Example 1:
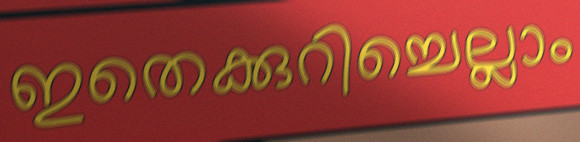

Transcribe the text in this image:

ഇതെക്കുറിച്ചെല്ലാം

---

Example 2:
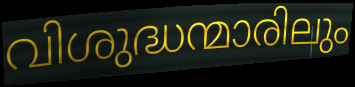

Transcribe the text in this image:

വിശുദ്ധന്മാരിലും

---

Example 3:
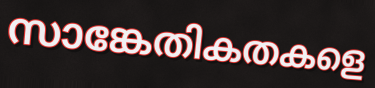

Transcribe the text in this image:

സാങ്കേതികതകളെ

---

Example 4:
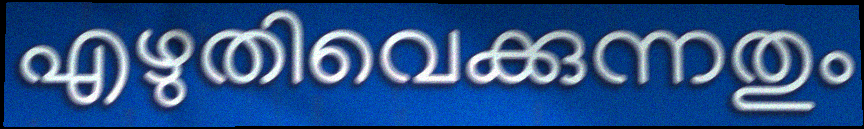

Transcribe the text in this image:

എഴുതിവെക്കുന്നതും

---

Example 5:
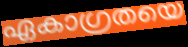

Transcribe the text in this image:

ഏകാഗ്രതയെ